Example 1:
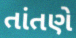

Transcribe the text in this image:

તાંતણે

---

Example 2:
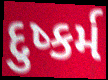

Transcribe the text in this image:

દુષ્કર્મ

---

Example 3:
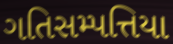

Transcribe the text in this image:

ગતિસમ્પત્તિયા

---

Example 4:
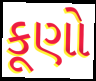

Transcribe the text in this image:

કૂણો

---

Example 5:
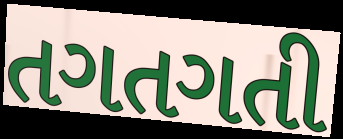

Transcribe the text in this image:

તગતગતી